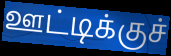
ஊட்டிக்குச்